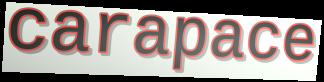
carapace